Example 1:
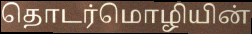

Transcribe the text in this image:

தொடர்மொழியின்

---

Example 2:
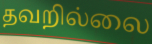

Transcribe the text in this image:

தவறில்லை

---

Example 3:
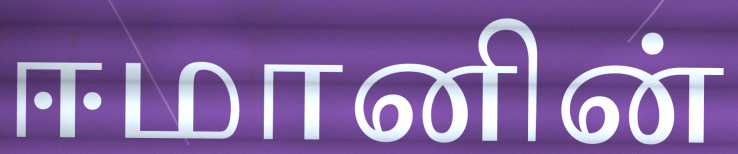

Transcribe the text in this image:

ஈமானின்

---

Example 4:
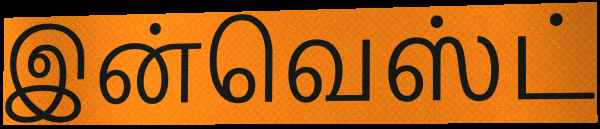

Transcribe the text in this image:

இன்வெஸ்ட்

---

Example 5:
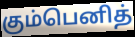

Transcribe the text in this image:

கும்பெனித்